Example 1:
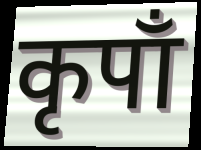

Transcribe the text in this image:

कृपाँ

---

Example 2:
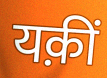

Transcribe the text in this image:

यक़ीं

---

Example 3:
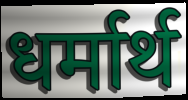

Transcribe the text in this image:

धर्मार्थ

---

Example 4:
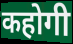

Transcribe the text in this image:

कहोगी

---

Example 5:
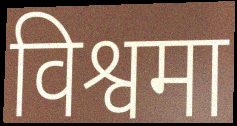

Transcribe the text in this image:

विश्वमा